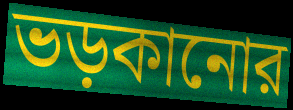
ভড়কানোর